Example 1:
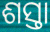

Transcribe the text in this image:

ଶସ୍ତା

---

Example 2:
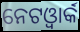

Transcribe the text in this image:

ନେଟଓ୍ବାର୍କ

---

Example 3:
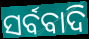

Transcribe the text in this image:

ସର୍ବବାଦି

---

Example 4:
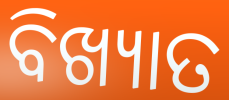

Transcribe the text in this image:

ବିଖ୍ୟାତ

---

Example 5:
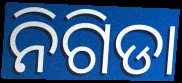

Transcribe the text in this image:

ନିଗିଡା